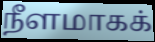
நீளமாகக்